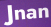
Jnan